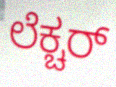
ಲೆಕ್ಚರ್